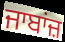
ਜਾਬਾਂਜ਼